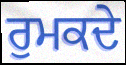
ਰੁਮਕਦੇ